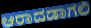
ಆರಾದಡಾಗಲಿ